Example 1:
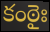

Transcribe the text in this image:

కంఠైః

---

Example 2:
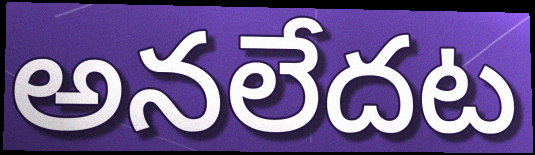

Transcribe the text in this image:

అనలేదట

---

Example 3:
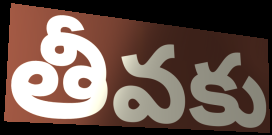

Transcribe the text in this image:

తీవకు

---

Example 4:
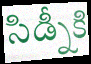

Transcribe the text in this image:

సిడ్నీకి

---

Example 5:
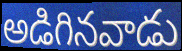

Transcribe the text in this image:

అడిగినవాడు